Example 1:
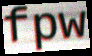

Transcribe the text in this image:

fpw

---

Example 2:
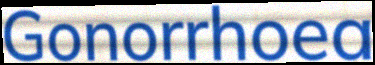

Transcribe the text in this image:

Gonorrhoea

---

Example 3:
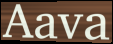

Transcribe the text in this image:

Aava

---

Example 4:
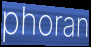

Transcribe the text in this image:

phoran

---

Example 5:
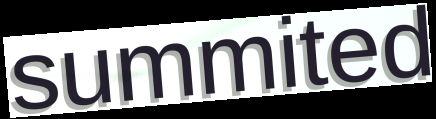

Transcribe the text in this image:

summited